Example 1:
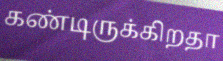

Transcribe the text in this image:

கண்டிருக்கிறதா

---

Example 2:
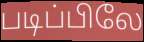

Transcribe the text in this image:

படிப்பிலே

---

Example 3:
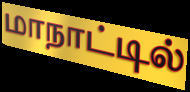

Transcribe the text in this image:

மாநாட்டில்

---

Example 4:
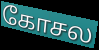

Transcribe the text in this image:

கோசல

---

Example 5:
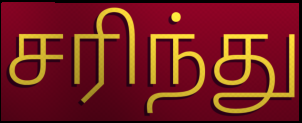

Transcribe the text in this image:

சரிந்து